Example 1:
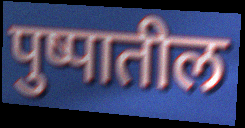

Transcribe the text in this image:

पुष्पातील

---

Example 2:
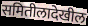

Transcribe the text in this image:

समितीलादेखील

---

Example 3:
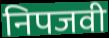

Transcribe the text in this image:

निपजवी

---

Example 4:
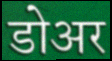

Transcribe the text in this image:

डोअर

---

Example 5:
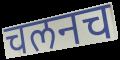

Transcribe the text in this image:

चलनच